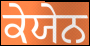
ਕੇਯੇਨ